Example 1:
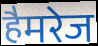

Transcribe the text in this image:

हैमरेज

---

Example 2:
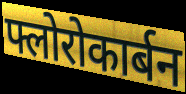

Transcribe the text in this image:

फ्लोरोकार्बन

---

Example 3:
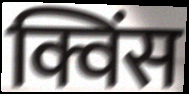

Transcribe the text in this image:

क्विंस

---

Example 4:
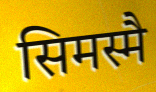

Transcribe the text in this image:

सिमस्मै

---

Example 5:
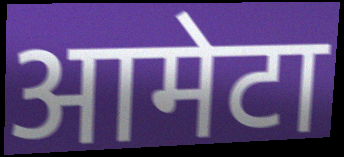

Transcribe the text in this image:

आमेटा